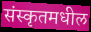
संस्कृतमधील